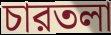
চারতলা